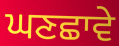
ਘਣਛਾਵੇ